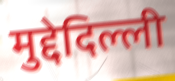
मुद्देदिल्ली